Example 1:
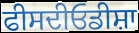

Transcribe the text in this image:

ਫੀਸਦੀਓਡੀਸ਼ਾ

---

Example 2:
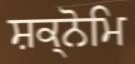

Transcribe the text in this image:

ਸ਼ਕ੍ਨੋਮਿ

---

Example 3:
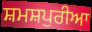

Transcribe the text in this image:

ਸ਼ਮਸ਼ਪੁਰੀਆ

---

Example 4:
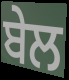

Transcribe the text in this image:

ਬੇਲ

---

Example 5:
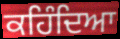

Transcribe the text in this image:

ਕਹਿੰਦਿਆ